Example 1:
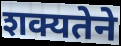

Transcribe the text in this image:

शक्यतेने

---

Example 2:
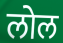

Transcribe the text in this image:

लोल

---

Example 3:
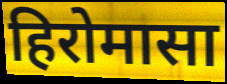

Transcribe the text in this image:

हिरोमासा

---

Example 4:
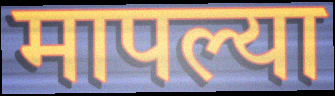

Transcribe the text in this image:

मापल्या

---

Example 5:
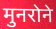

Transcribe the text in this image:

मुनरोने